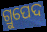
ଗ୍ରୁପେଦ